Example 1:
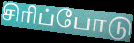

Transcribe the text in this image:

சிரிப்போடு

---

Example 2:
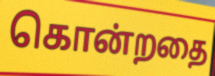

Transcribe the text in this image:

கொன்றதை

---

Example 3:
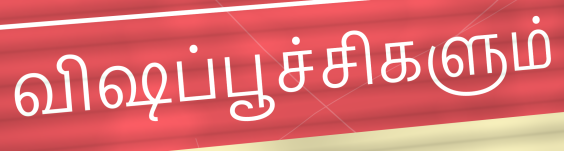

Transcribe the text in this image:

விஷப்பூச்சிகளும்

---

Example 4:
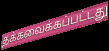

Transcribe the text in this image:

தக்கவைக்கப்பட்டது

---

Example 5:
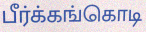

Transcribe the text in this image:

பீர்க்கங்கொடி